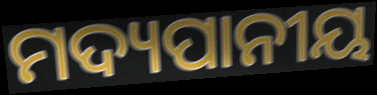
ମଦ୍ୟପାନୀୟ